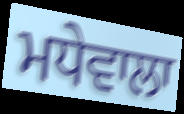
ਮਧੇਵਾਲਾ